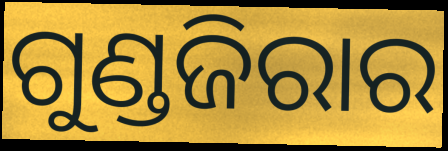
ଗୁଣ୍ଡଜିରାର